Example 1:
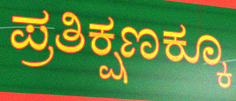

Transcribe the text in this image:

ಪ್ರತಿಕ್ಷಣಕ್ಕೂ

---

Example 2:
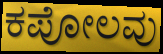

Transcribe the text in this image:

ಕಪೋಲವು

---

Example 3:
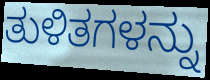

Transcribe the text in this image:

ತುಳಿತಗಳನ್ನು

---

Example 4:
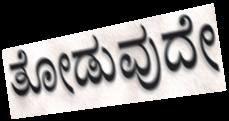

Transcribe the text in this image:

ತೋಡುವುದೇ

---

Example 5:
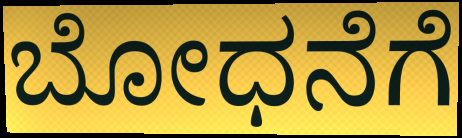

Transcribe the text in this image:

ಬೋಧನೆಗೆ